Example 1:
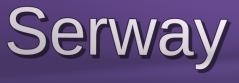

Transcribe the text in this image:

Serway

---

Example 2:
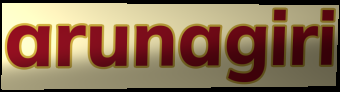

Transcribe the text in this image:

arunagiri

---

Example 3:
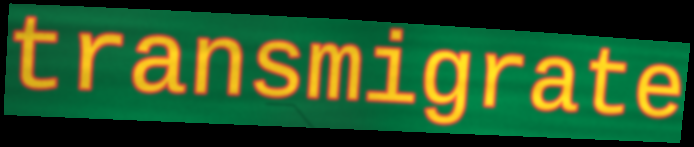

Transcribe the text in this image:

transmigrate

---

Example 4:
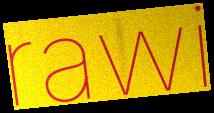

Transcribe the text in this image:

rawi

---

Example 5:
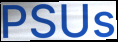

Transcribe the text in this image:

PSUs